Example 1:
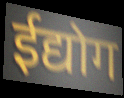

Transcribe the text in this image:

ईद्योग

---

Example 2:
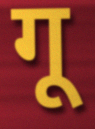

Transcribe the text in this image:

गू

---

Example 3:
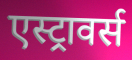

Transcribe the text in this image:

एस्ट्रावर्स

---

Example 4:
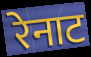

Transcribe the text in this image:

रेनाट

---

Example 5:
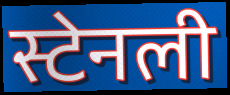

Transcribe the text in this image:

स्‍टेनली